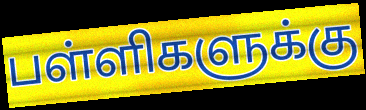
பள்ளிகளுக்கு